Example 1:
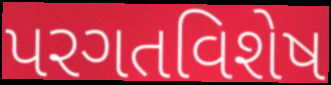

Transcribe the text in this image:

પરગતવિશેષ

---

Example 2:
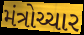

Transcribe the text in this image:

મંત્રોચ્ચાર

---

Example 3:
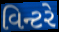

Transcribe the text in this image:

વિન્ટરે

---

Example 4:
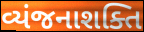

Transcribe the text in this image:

વ્યંજનાશક્તિ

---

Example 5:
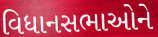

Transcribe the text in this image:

વિધાનસભાઓને